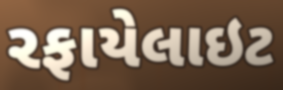
રફાયેલાઇટ